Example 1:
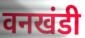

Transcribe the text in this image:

वनखंडी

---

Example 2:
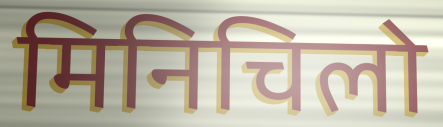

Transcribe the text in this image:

मिनिचिलो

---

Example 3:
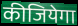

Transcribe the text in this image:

कीजियेगा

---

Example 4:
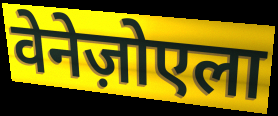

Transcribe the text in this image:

वेनेज़ोएला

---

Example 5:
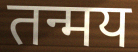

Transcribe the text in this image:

तन्मय